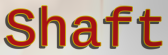
Shaft